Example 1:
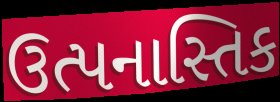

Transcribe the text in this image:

ઉત્પનાસ્તિક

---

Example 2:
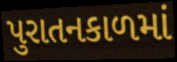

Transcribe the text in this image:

પુરાતનકાળમાં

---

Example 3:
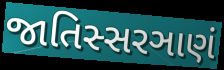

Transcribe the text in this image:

જાતિસ્સરઞાણં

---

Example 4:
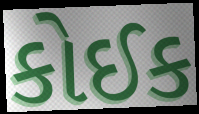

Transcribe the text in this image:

કોઈક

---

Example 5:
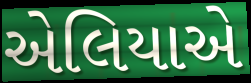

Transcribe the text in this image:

એલિયાએ